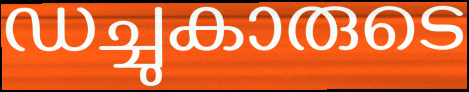
ഡച്ചുകാരുടെ